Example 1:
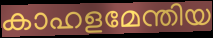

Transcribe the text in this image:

കാഹളമേന്തിയ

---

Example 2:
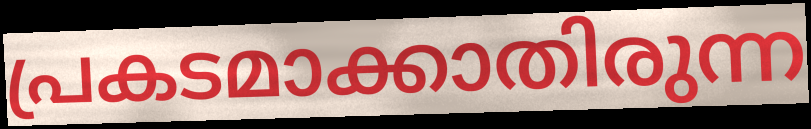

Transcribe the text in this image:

പ്രകടമാക്കാതിരുന്ന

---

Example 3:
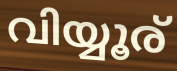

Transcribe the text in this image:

വിയ്യൂര്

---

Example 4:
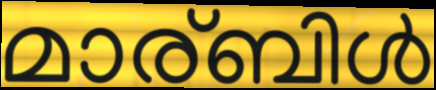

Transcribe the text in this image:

മാര്ബിൾ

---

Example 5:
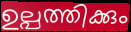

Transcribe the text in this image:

ഉല്പത്തിക്കും